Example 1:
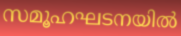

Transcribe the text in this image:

സമൂഹഘടനയിൽ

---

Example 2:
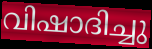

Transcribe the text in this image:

വിഷാദിച്ചു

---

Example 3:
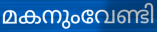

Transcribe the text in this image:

മകനുംവേണ്ടി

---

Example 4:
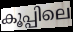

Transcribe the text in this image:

കൂപ്പിലെ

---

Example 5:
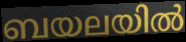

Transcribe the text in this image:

ബയലയിൽ